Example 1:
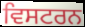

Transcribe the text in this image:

ਵਿਸਟਰਨ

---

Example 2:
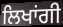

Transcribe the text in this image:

ਲਿਖਾਂਗੀ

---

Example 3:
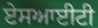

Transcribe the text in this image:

ਏਸਆਈਟੀ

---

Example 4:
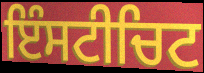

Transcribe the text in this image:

ਇੰਸਟੀਚਿਟ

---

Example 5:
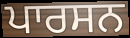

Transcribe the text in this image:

ਪਾਰਸਨ